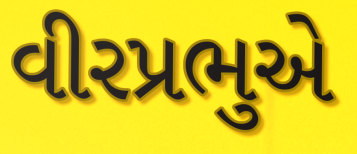
વીરપ્રભુએ